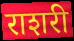
राशरी